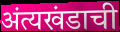
अंत्यखंडाची